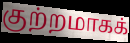
குற்றமாகக்